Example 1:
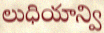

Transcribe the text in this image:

లుధియాన్వి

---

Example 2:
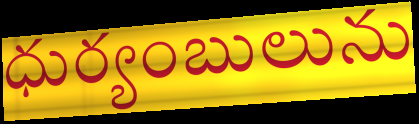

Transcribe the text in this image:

ధుర్యంబులును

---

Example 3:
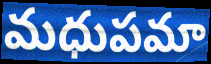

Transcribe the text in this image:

మధుపమా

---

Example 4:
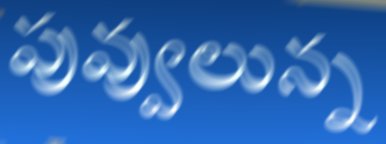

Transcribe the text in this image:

పువ్వులున్న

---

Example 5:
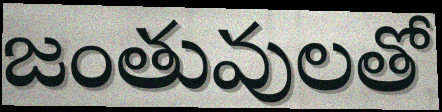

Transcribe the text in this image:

జంతువులతో